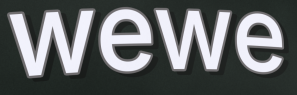
wewe